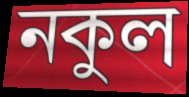
নকুল